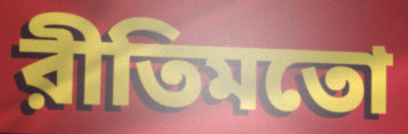
রীতিমতো